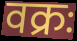
वक्रः